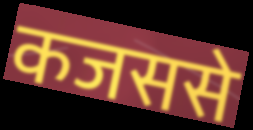
कजससे